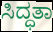
ಸಿದ್ಧತಾ